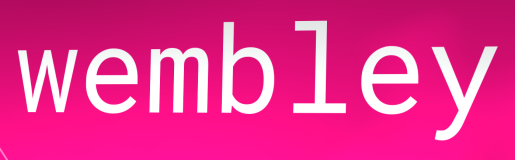
wembley